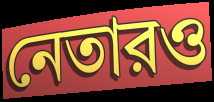
নেতারও